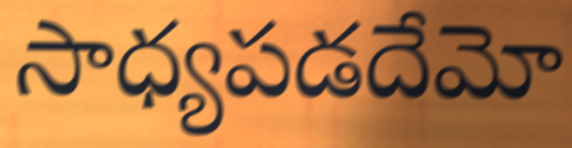
సాధ్యపడదేమో